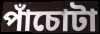
পাঁচোটা